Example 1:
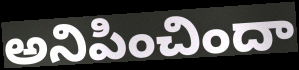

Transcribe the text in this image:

అనిపించిందా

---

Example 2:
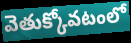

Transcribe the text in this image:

వెతుక్కోవటంలో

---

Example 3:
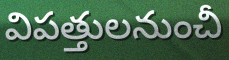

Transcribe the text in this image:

విపత్తులనుంచీ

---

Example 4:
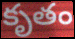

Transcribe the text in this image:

కృతం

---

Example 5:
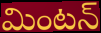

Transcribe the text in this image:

మింటన్